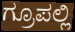
ಗ್ರೂಪಲ್ಲಿ